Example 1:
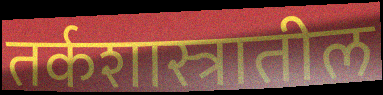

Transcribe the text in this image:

तर्कशास्त्रातील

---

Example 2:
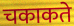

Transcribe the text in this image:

चकाकते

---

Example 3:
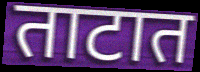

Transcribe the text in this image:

ताटात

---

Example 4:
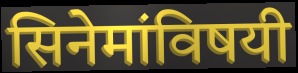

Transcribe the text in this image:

सिनेमांविषयी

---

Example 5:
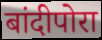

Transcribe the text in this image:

बांदीपोरा